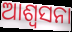
ଆଶ୍ୱସନା